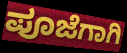
ಪೂಜೆಗಾಗಿ